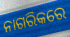
ନାଗରିକରେ